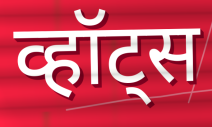
व्हॉट्स